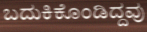
ಬದುಕಿಕೊಂಡಿದ್ದವು